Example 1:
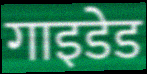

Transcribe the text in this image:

गाइडेड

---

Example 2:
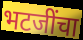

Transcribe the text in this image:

भटजींचा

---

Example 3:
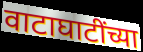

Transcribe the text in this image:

वाटाघाटींच्या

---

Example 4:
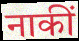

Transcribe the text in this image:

नाकीं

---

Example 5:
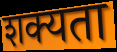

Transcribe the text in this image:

शक्यता